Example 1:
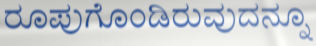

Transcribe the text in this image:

ರೂಪುಗೊಂಡಿರುವುದನ್ನೂ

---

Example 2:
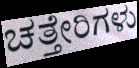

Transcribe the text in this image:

ಚತ್ತೇರಿಗಳು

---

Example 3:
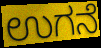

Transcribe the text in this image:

ಉಗನೆ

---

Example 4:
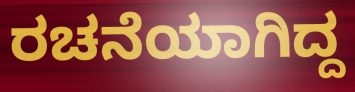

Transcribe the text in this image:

ರಚನೆಯಾಗಿದ್ದ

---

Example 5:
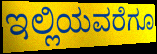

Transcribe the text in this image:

ಇಲ್ಲಿಯವರೆಗೂ